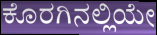
ಕೊರಗಿನಲ್ಲಿಯೇ